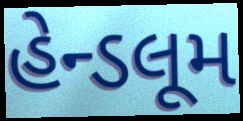
હેન્ડલૂમ